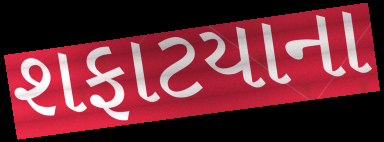
શફાટયાના